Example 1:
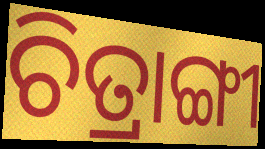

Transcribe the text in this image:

ଚିତ୍ରାଙ୍ଗୀ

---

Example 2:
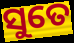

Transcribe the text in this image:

ସୁତେ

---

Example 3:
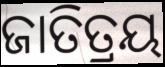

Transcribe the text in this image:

ଜାତିତ୍ରୟ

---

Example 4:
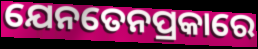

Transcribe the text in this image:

ଯେନତେନପ୍ରକାରେ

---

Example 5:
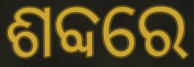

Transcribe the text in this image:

ଶବ୍ଦରେ